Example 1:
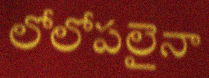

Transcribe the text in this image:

లోలోపలైనా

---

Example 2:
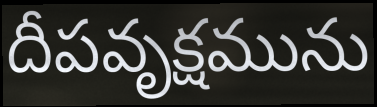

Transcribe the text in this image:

దీపవృక్షమును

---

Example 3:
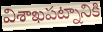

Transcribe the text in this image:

విశాఖపట్నానికి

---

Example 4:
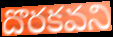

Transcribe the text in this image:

దొరకవని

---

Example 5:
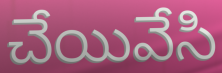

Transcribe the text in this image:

చేయివేసి